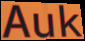
Auk